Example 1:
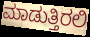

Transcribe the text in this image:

ಮಾಡುತ್ತಿರಲಿ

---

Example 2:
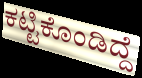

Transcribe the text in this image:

ಕಟ್ಟಿಕೊಂಡಿದ್ದೆ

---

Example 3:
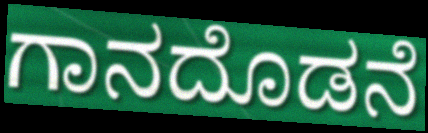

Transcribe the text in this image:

ಗಾನದೊಡನೆ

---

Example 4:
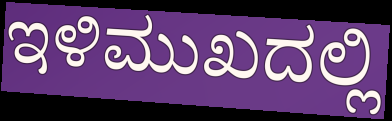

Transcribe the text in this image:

ಇಳಿಮುಖದಲ್ಲಿ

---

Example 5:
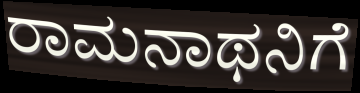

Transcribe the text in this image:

ರಾಮನಾಥನಿಗೆ